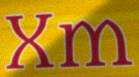
Xm